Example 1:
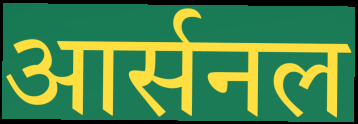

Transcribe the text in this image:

आर्सनल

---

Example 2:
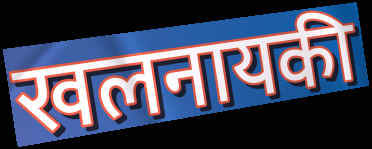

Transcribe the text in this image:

खलनायकी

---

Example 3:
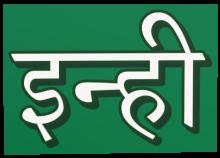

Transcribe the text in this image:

इन्ही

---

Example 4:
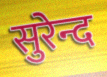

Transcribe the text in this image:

सुरेन्द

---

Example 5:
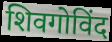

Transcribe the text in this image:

शिवगोविंद